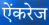
ऐंकरेज